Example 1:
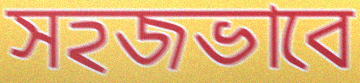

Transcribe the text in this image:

সহজভাবে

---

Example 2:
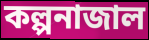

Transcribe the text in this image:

কল্পনাজাল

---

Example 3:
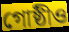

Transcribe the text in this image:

গোষ্ঠীও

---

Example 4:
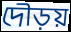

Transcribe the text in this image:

দৌড়য়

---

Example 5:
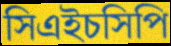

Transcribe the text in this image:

সিএইচসিপি